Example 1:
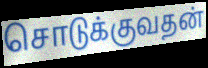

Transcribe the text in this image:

சொடுக்குவதன்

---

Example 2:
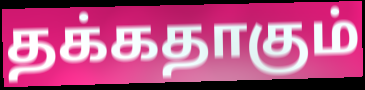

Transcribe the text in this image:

தக்கதாகும்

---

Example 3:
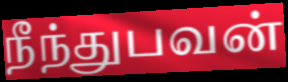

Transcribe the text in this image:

நீந்துபவன்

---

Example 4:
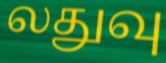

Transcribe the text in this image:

லதுவு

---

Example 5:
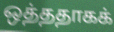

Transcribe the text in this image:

ஒத்ததாகக்